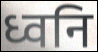
ध्वनि